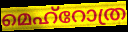
മെഹ്റോത്ര